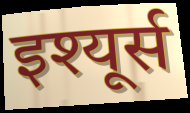
इश्यूर्स